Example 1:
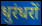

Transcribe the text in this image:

धुरंधरों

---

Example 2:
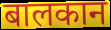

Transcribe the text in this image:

बालकान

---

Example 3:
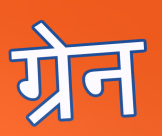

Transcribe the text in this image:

ग्रेन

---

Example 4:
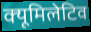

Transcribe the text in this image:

क्यूमिलेटिव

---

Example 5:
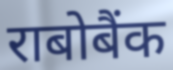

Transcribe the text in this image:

राबोबैंक